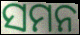
ସମନ